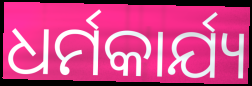
ଧର୍ମକାର୍ଯ୍ୟ